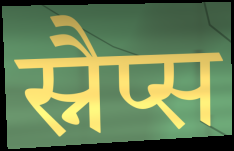
स्नैप्स